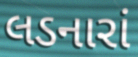
લડનારાં